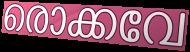
രൊക്കവേ